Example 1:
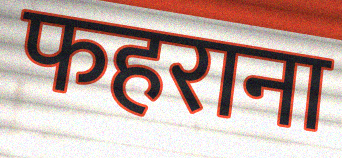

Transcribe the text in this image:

फहराना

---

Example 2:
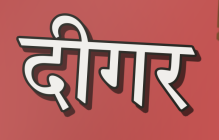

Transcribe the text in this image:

दीगर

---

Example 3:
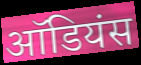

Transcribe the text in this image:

ऑडियंस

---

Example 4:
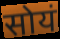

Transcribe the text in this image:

सोयं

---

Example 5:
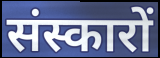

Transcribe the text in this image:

संस्कारों